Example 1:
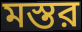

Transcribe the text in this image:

মস্তর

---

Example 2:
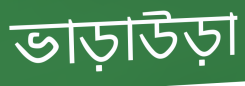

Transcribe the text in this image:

ভাড়াউড়া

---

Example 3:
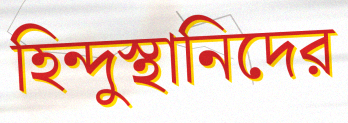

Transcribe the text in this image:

হিন্দুস্থানিদের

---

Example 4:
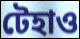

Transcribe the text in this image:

টেহাও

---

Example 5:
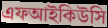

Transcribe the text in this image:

এফআইকিউসি